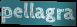
pellagra